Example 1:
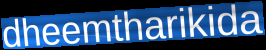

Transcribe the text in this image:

dheemtharikida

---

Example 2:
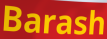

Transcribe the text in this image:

Barash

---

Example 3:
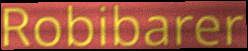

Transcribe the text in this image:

Robibarer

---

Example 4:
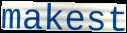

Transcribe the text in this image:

makest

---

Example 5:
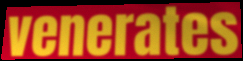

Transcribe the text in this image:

venerates